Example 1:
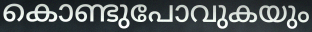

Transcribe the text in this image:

കൊണ്ടുപോവുകയും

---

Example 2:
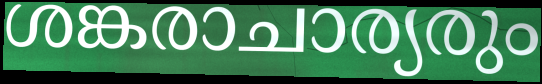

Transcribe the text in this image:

ശങ്കരാചാര്യരും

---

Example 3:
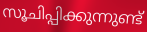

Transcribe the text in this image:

സൂചിപ്പിക്കുന്നുണ്ട്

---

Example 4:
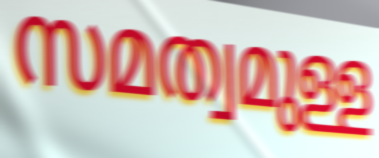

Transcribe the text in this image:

സമത്വമുള്ള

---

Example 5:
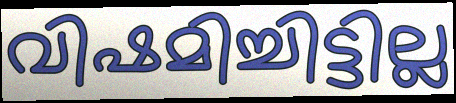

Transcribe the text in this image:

വിഷമിച്ചിട്ടില്ല